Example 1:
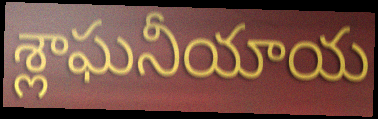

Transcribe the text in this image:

శ్లాఘనీయాయ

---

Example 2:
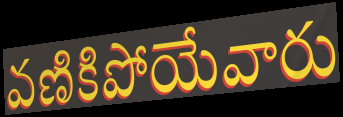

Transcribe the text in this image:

వణికిపోయేవారు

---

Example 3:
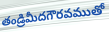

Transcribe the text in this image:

తండ్రిమీదగౌరవముతో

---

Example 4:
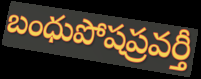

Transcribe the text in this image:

బంధుపోషప్రవర్తీ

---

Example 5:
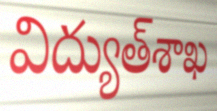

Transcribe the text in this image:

విద్యుత్‌శాఖ